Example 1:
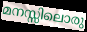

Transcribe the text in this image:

മനസ്സിലൊരു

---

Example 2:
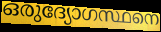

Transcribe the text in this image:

ഒരുദ്യോഗസ്ഥനെ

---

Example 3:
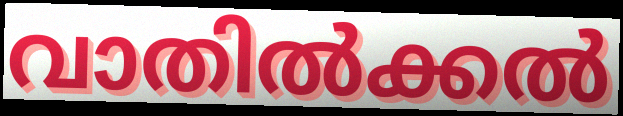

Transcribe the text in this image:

വാതിൽക്കൽ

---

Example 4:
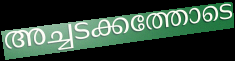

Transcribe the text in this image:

അച്ചടക്കത്തോടെ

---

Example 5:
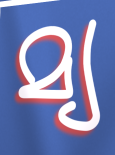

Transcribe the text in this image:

മ്യ